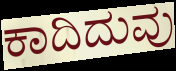
ಕಾದಿದುವು